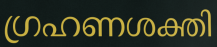
ഗ്രഹണശക്തി